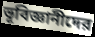
ভূবিজ্ঞানীদের